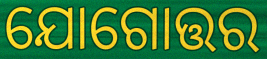
ଯୋଗୋତ୍ତର